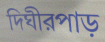
দিঘীরপাড়